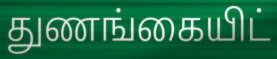
துணங்கையிட்